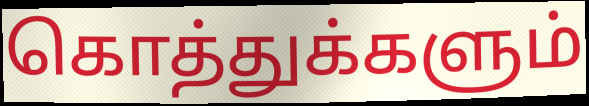
கொத்துக்களும்